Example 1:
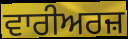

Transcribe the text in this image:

ਵਾਰੀਅਰਜ਼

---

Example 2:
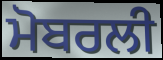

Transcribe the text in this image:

ਮੋਬਰਲੀ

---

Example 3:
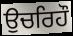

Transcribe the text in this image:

ਉਚਰਿਹੌ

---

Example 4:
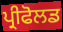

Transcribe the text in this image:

ਪ੍ਰੀਫੋਲਡ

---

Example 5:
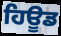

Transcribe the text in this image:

ਹਿਊਡ